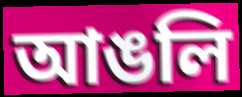
আঙলি